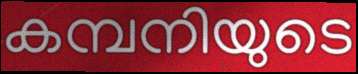
കമ്പനിയുടെ